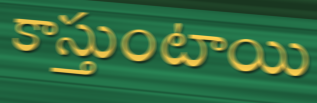
కాస్తుంటాయి